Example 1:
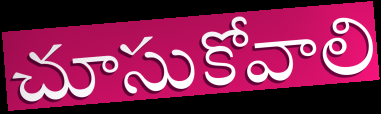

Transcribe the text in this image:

చూసుకోవాలి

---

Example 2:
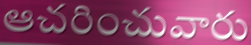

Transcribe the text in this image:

ఆచరించువారు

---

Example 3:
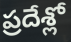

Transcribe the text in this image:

ప్రదేశ్లో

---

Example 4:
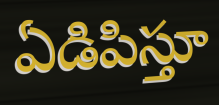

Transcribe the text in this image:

ఏడిపిస్తూ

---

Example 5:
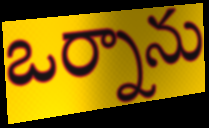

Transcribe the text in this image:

ఒర్నాను